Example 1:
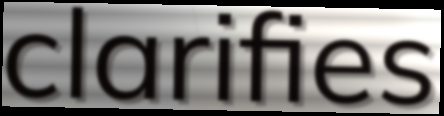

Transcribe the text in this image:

clarifies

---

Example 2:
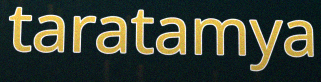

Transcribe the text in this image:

taratamya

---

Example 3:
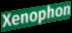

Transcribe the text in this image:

Xenophon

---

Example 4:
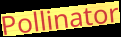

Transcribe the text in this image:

Pollinator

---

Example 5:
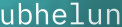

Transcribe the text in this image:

ubhelun